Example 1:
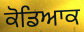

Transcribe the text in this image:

ਕੋਡਿਆਕ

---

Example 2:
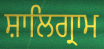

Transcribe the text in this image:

ਸ਼ਾਲਿਗ੍ਰਾਮ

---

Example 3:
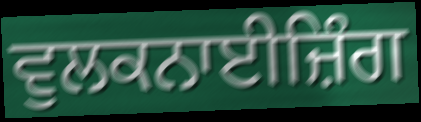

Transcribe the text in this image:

ਵੁਲਕਨਾਈਜ਼ਿੰਗ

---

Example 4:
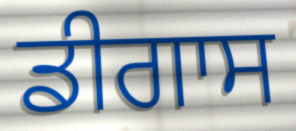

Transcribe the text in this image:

ਡੀਗਾਸ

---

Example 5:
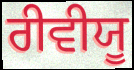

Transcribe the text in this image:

ਰੀਵੀਯੂ